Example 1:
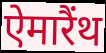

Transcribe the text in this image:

ऐमारैंथ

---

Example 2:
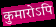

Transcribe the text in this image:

कुमारोऽपि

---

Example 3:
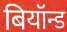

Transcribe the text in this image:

बियॉन्ड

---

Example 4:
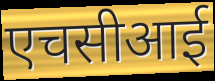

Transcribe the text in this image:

एचसीआई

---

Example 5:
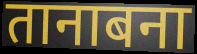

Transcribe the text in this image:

तानाबना